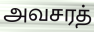
அவசரத்